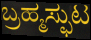
ಬ್ರಹ್ಮಸ್ಫುಟ